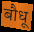
बौधू